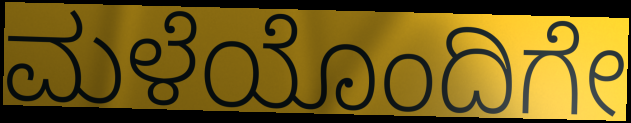
ಮಳೆಯೊಂದಿಗೇ